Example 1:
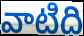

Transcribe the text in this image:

వాటిది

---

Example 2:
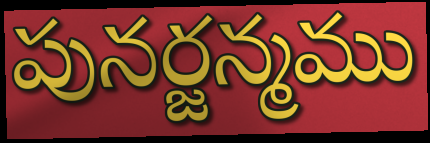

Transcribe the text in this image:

పునర్జన్మము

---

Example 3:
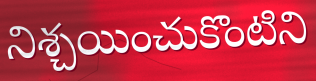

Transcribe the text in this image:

నిశ్చయించుకొంటిని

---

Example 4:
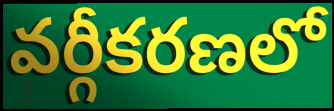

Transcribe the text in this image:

వర్గీకరణలో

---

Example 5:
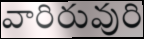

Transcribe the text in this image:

వారిరువురి